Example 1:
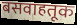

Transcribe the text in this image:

बसवाहतूक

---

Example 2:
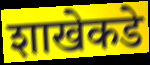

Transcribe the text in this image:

शाखेकडे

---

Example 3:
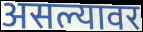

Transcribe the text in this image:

असल्यावर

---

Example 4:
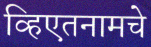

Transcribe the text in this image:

व्हिएतनामचे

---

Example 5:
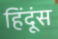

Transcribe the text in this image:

हिंदूंस